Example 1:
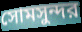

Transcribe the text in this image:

সোমসুন্দর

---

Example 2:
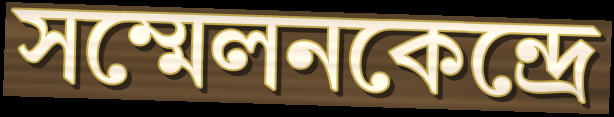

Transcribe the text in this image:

সম্মেলনকেন্দ্রে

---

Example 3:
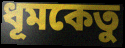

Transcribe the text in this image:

ধূমকেতু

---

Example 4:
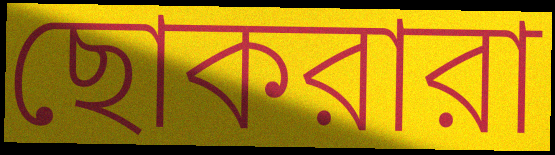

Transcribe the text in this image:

ছোকরারা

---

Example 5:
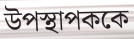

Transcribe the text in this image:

উপস্থাপককে